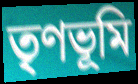
তৃণভূমি